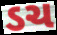
ડચ